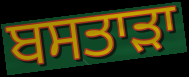
ਬਸਤਾੜਾ